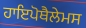
ਹਾਇਪੋਥੈਲੇਮਸ